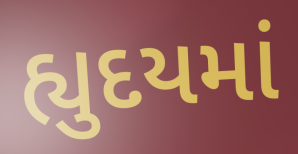
હ્યુદયમાં